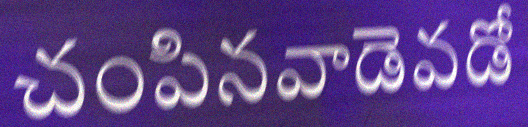
చంపినవాడెవడో